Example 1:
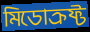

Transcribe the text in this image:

মিডোক্রফ্ট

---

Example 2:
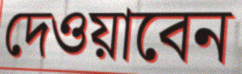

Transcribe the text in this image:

দেওয়াবেন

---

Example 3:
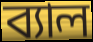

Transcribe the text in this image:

ব্যাল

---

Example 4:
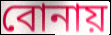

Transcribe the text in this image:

বোনায়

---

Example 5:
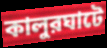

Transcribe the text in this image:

কালুরঘাটে